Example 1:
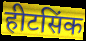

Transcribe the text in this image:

हीटसिंक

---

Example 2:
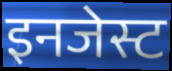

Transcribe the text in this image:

इनजेस्ट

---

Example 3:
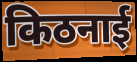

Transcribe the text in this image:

किठनाई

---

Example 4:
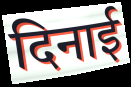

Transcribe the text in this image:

दिनाई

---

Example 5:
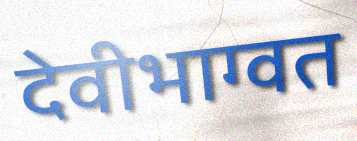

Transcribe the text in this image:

देवीभाग्वत